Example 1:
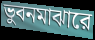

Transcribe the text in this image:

ভুবনমাঝারে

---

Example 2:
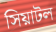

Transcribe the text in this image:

সিয়াটল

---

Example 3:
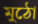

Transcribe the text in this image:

মুঠো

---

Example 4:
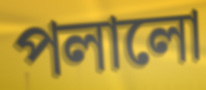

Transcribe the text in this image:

পলালো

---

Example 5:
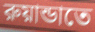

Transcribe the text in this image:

রুয়ান্ডাতে